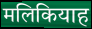
मलिकियाह